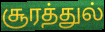
சூரத்துல்